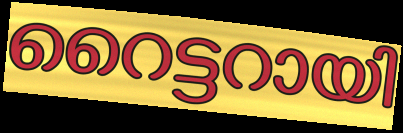
റൈട്ടറായി